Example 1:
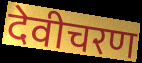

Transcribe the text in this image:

देवीचरण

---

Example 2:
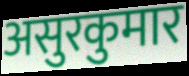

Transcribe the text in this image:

असुरकुमार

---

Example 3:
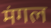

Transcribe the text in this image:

मंगल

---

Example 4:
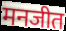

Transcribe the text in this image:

मनजीत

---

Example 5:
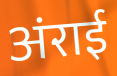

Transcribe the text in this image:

अंराई